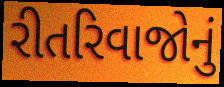
રીતરિવાજોનું